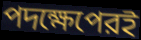
পদক্ষেপেরই